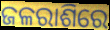
ଜଳରାଶିରେ